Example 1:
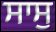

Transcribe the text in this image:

ਸਾਸੁ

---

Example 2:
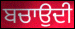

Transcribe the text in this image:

ਬਚਾਉਦੀ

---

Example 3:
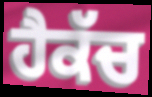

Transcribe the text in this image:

ਹੈਕੱਚ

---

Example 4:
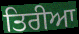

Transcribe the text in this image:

ਤਿਰੀਆ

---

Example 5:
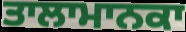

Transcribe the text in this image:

ਤਾਲਾਮਾਨਕਾ